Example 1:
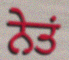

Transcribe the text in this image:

ਨੇਤਂ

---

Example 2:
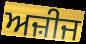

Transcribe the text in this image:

ਅਜ਼ੀਜ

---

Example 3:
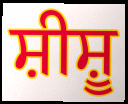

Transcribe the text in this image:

ਸ਼ੀਸ਼ੂ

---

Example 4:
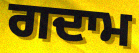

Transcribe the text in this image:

ਗਦਾਮ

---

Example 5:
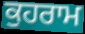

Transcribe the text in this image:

ਕੁਹਰਾਮ